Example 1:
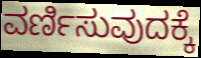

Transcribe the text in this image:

ವರ್ಣಿಸುವುದಕ್ಕೆ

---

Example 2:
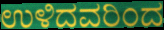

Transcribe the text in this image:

ಉಳಿದವರಿಂದ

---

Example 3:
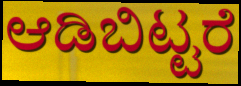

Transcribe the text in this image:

ಆಡಿಬಿಟ್ಟರೆ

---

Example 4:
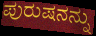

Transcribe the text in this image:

ಪುರುಷನನ್ನು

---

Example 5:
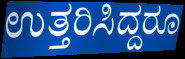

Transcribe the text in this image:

ಉತ್ತರಿಸಿದ್ದರೂ